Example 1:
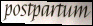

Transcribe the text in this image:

postpartum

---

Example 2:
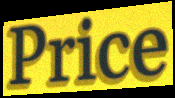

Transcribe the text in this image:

Price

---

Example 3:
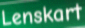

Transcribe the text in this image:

Lenskart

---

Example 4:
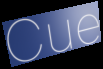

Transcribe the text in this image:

Cue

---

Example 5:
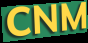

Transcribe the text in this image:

CNM